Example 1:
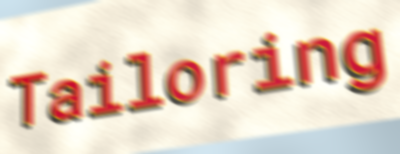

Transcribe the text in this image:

Tailoring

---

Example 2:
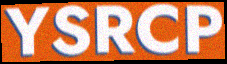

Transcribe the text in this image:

YSRCP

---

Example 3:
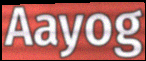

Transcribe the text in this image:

Aayog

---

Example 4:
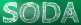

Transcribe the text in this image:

SODA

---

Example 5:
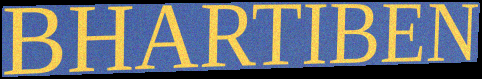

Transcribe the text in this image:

BHARTIBEN